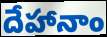
దేహానాం